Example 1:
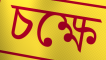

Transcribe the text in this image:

চক্ষে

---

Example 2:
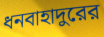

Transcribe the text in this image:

ধনবাহাদুরের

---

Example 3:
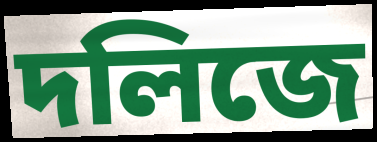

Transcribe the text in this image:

দলিজে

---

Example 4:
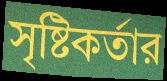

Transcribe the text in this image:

সৃষ্টিকর্তার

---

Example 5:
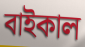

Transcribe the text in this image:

বাইকাল